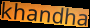
khandha